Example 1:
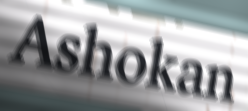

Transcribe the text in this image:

Ashokan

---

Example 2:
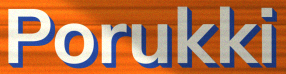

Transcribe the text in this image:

Porukki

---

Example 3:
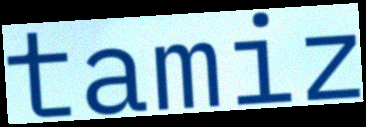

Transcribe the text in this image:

tamiz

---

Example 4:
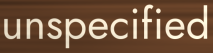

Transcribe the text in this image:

unspecified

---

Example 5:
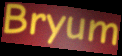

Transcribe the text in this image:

Bryum